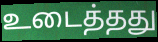
உடைத்தது